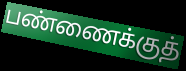
பண்ணைக்குத்